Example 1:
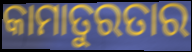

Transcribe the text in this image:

କାମାତୁରତାର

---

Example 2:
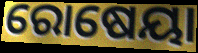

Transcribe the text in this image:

ରୋଷେୟା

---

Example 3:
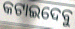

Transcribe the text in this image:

କଟାଇଦେବୁ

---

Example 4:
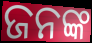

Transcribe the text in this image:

ଜନଙ୍କ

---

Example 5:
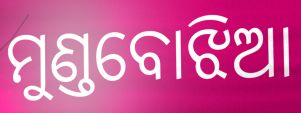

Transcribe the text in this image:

ମୁଣ୍ଡବୋଝିଆ